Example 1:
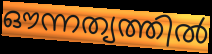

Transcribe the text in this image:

ഔന്നത്യത്തിൽ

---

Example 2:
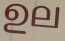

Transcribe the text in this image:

ഉല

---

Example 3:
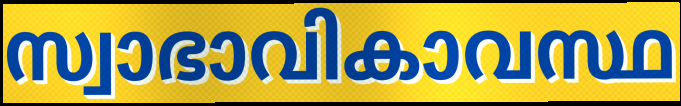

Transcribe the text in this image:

സ്വാഭാവികാവസ്ഥ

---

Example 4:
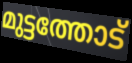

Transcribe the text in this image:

മുട്ടത്തോട്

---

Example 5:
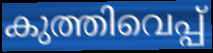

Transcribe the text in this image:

കുത്തിവെപ്പ്